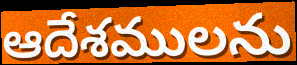
ఆదేశములను